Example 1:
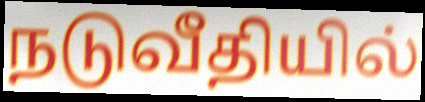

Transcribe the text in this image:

நடுவீதியில்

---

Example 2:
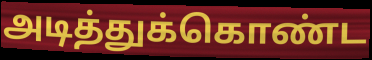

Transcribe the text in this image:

அடித்துக்கொண்ட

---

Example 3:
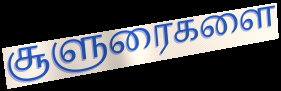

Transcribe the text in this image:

சூளுரைகளை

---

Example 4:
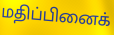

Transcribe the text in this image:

மதிப்பினைக்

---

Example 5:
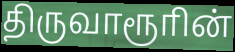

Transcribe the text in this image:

திருவாரூரின்